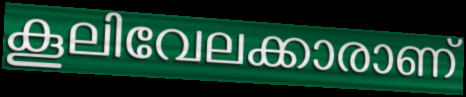
കൂലിവേലക്കാരാണ്